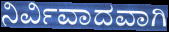
ನಿರ್ವಿವಾದವಾಗಿ